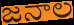
జనాల